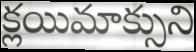
క్లయిమాక్సుని